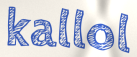
kallol